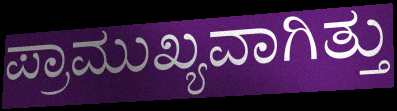
ಪ್ರಾಮುಖ್ಯವಾಗಿತ್ತು